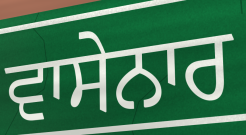
ਵਾਸੇਨਾਰ